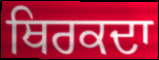
ਥਿਰਕਦਾ